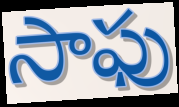
సాఫు